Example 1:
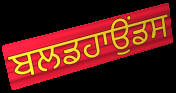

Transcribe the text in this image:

ਬਲਡਹਾਉਂਡਸ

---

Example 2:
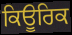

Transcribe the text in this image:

ਕਿਊਰਿਕ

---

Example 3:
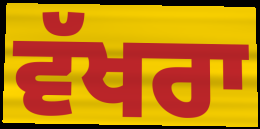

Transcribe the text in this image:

ਵੱਖਰਾ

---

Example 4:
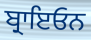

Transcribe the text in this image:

ਬ੍ਰਾਇਓਨ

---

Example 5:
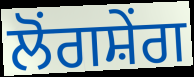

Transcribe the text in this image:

ਲੋਂਗਸ਼ੇਂਗ